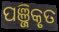
ପଞ୍ଜିକୃତ